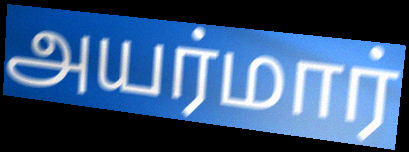
அயர்மார்